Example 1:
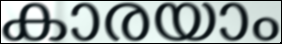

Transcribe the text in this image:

കാരയാം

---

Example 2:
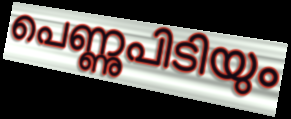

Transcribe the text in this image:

പെണ്ണുപിടിയും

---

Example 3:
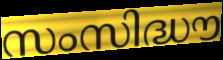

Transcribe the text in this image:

സംസിദ്ധൗ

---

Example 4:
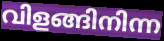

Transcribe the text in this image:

വിളങ്ങിനിന്ന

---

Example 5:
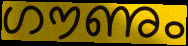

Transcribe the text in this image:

ഗൗണും